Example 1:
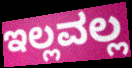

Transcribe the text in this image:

ಇಲ್ಲವಲ್ಲ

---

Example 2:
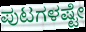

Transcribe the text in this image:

ಪುಟಗಳಷ್ಟೇ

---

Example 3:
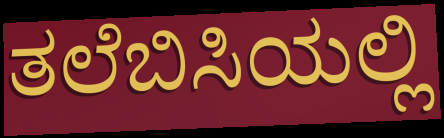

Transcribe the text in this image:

ತಲೆಬಿಸಿಯಲ್ಲಿ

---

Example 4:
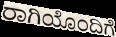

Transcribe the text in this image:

ರಾಗಿಯೊಂದಿಗೆ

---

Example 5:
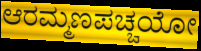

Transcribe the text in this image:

ಆರಮ್ಮಣಪಚ್ಚಯೋ